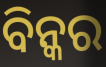
ବିନ୍କର